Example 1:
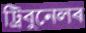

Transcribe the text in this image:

ট্ৰিবুনেলৰ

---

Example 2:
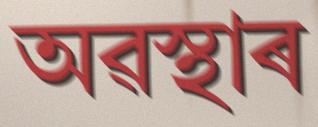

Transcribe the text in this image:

অৱস্থাৰ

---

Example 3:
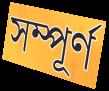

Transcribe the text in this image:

সম্পূৰ্ণ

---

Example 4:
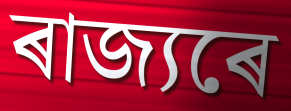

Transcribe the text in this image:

ৰাজ্যৰে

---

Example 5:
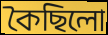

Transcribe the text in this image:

কৈছিলো